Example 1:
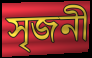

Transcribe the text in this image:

সৃজনী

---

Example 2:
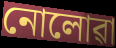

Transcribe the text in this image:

নোলোৱা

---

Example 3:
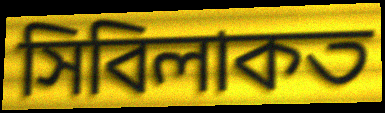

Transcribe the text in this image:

সিবিলাকত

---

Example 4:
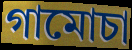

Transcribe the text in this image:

গামোচা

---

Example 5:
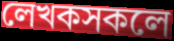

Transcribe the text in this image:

লেখকসকলে